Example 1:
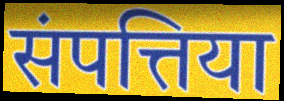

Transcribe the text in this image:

संपत्तिया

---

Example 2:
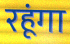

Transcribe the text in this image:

रहूंगा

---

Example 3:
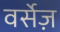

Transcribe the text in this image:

वर्सेज़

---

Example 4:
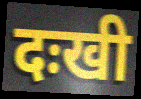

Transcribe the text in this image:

दःखी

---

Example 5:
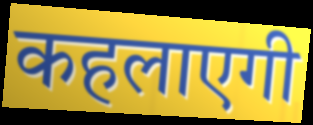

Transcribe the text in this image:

कहलाएगी